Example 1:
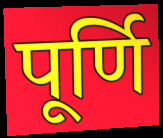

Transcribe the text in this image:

पूर्णि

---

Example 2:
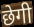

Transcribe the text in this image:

छेगी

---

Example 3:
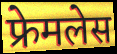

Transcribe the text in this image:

फ्रेमलेस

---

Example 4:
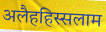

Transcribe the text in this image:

अलैहहिस्सलाम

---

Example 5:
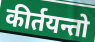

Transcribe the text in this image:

कीर्तयन्तो